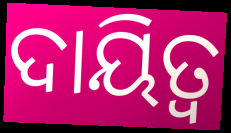
ଦାୟିତ୍ବ